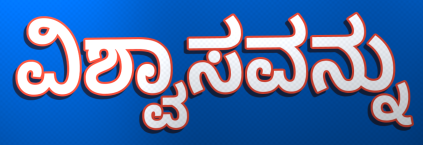
ವಿಶ್ವಾಸವನ್ನು